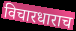
विचारधाराच